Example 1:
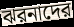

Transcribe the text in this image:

ঝরনাদের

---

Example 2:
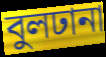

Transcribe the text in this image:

বুলঢানা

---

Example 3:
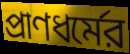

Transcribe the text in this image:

প্রাণধর্মের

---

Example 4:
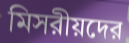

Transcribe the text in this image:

মিসরীয়দের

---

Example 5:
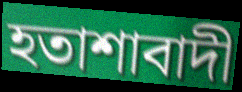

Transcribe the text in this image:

হতাশাবাদী